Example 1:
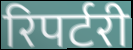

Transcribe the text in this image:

रिपर्टरी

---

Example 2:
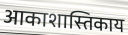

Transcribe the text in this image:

आकाशास्तिकाय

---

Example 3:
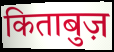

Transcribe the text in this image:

किताबुज़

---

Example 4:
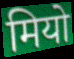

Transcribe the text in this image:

मियो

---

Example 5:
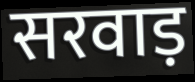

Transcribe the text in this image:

सरवाड़